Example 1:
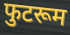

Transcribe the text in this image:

फुटरूम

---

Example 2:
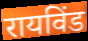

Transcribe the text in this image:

रायविंड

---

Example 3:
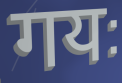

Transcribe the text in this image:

गयः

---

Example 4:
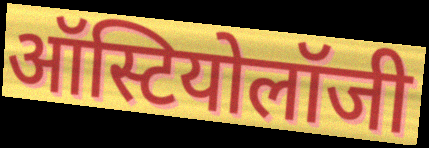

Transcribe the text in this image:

ऑस्टियोलॉजी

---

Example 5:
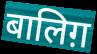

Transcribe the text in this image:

बालिग़